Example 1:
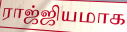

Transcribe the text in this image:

ராஜ்ஜியமாக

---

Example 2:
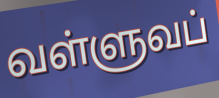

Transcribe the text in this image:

வள்ளுவப்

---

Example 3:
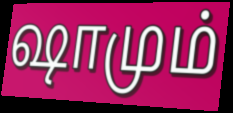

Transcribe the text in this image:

ஷாமும்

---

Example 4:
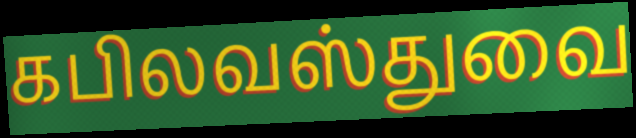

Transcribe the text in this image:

கபிலவஸ்துவை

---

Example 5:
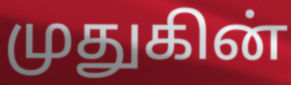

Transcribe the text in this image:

முதுகின்